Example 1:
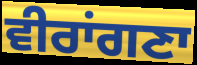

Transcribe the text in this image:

ਵੀਰਾਂਗਣਾ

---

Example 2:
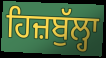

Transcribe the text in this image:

ਹਿਜ਼ਬੁੱਲ੍ਹਾ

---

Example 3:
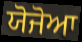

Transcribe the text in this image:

ਯੋਜੋਆ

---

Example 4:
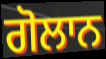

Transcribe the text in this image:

ਗੋਲਾਨ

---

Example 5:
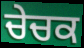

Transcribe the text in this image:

ਚੇਚਕ